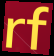
rf